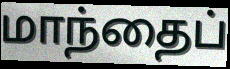
மாந்தைப்